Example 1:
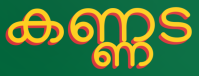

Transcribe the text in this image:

കണ്ണട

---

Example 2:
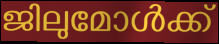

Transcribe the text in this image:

ജിലുമോൾക്ക്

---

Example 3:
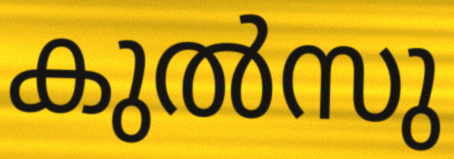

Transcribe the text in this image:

കുൽസു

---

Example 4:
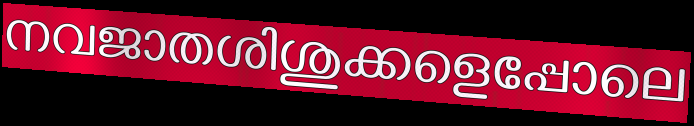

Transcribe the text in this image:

നവജാതശിശുക്കളെപ്പോലെ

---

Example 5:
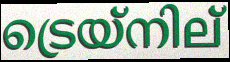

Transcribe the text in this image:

ട്രെയ്നില്